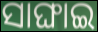
ସାଙ୍ଘାଇ